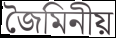
জৈমিনীয়